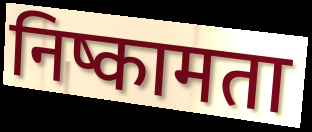
निष्कामता